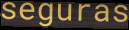
seguras